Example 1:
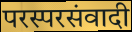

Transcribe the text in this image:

परस्परसंवादी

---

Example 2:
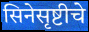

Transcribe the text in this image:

सिनेसृष्टीचे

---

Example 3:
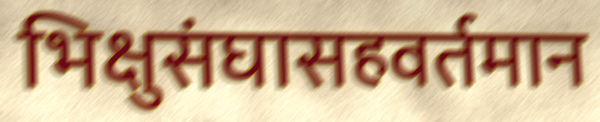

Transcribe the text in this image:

भिक्षुसंघासहवर्तमान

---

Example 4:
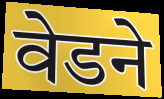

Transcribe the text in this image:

वेडने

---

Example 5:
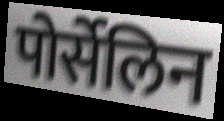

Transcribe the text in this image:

पोर्सेलिन